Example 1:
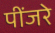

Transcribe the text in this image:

पींजरे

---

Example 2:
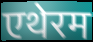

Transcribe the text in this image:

एथेरम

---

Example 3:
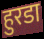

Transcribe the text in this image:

हुरडा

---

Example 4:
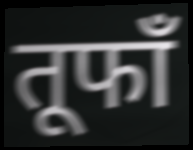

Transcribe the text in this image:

तूफाँ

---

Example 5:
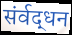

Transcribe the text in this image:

संर्वद्धन